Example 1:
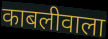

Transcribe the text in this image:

काबलीवाला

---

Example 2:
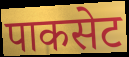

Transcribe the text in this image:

पाकसेट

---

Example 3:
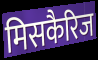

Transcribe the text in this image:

मिसकैरिज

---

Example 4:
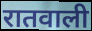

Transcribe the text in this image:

रातवाली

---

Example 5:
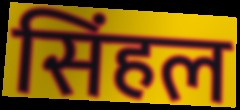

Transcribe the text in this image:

सिंहल